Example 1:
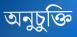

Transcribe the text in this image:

অনুচুক্তি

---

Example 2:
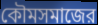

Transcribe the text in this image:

কৌমসমাজের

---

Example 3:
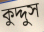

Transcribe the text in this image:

কুদ্দুস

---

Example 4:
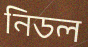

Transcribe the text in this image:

নিডল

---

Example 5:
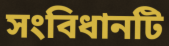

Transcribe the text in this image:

সংবিধানটি